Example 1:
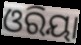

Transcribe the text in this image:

ଓରିୟା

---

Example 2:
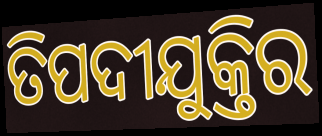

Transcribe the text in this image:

ତିପଦୀଯୁକ୍ତିର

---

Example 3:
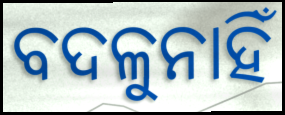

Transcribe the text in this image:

ବଦଳୁନାହିଁ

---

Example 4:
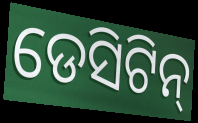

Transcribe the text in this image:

ଡେସିଟିନ୍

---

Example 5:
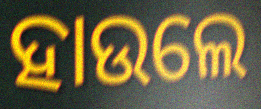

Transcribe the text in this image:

ହାଉଲେ